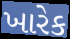
ખારેક